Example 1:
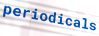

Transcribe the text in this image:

periodicals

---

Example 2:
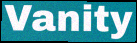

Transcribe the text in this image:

Vanity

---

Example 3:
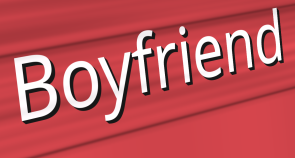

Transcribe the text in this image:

Boyfriend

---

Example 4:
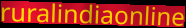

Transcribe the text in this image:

ruralindiaonline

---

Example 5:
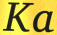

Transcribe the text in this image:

Ka